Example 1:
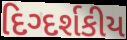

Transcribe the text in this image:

દિગ્દર્શકીય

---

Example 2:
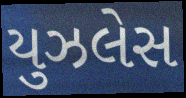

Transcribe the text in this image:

યુઝલેસ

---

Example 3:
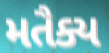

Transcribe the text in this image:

મતૈક્ય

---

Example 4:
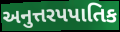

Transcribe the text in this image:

અનુત્તરપપાતિક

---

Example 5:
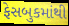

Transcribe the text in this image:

ફેસબુકમાંથી